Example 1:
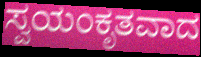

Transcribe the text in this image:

ಸ್ವಯಂಕೃತವಾದ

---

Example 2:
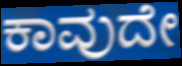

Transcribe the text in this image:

ಕಾವುದೇ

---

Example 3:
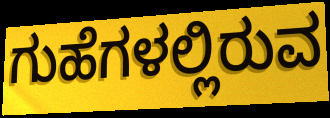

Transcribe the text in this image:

ಗುಹೆಗಳಲ್ಲಿರುವ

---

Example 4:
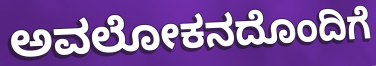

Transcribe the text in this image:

ಅವಲೋಕನದೊಂದಿಗೆ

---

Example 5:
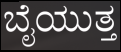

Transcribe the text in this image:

ಬೈಯುತ್ತ